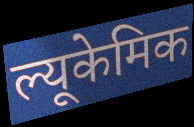
ल्यूकेमिक